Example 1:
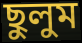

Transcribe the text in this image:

ছুলুম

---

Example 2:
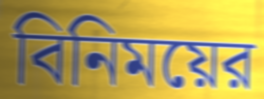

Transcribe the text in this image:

বিনিময়ের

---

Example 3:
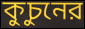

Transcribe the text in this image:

কুচুনের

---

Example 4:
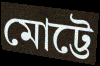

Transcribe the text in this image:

মোট্টে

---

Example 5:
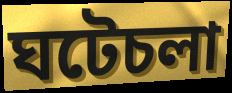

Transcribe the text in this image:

ঘটেচলা